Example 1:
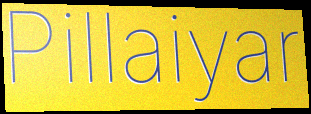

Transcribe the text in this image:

Pillaiyar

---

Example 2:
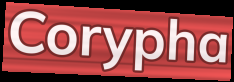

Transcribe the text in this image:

Corypha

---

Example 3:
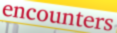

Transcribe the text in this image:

encounters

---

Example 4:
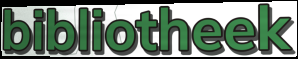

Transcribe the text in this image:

bibliotheek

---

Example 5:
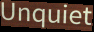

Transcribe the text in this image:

Unquiet